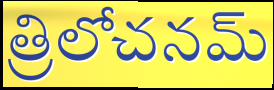
త్రిలోచనమ్